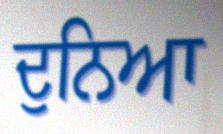
ਦੁਨਿਆ